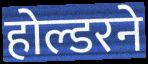
होल्डरने